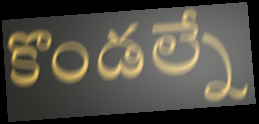
కొండల్నే